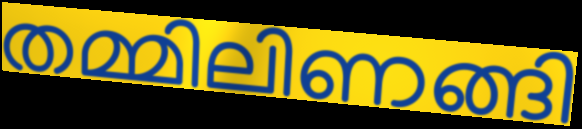
തമ്മിലിണങ്ങി